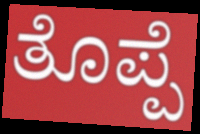
ತೊಪ್ಪೆ